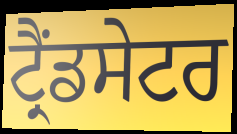
ਟ੍ਰੈਂਡਸੇਟਰ